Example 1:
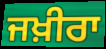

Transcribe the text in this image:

ਜਖ਼ੀਰਾ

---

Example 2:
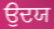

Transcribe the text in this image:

ਉਦਯ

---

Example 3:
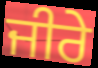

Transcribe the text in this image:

ਜੀਰੇ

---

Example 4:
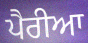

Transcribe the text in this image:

ਪੈਰੀਆ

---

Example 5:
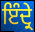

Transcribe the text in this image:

ਇੰਦ੍ਰੇ